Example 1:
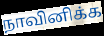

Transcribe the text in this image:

நாவினிக்க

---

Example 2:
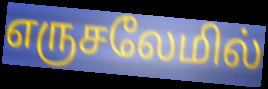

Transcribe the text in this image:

எருசலேமில்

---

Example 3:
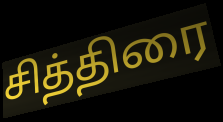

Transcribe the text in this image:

சித்திரை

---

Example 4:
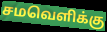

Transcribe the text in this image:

சமவெளிக்கு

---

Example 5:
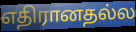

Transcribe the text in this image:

எதிரானதல்ல